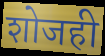
शोजही